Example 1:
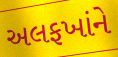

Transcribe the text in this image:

અલફખાંને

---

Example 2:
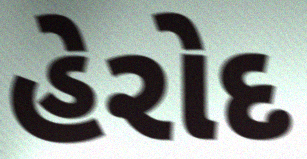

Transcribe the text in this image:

હેરોદ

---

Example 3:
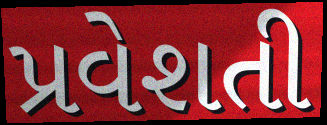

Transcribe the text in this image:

પ્રવેશતી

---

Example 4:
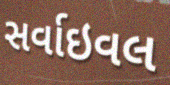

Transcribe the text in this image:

સર્વાઇવલ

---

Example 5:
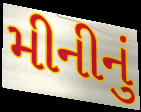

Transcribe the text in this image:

મીનીનું